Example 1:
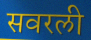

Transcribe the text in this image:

सवरली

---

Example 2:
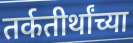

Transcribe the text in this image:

तर्कतीर्थांच्या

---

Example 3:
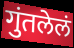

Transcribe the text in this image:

गुंतलेलं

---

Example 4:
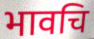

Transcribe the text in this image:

भावचि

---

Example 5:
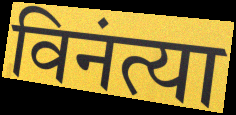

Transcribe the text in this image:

विनंत्या